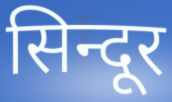
सिन्दूर